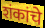
शंकांचे